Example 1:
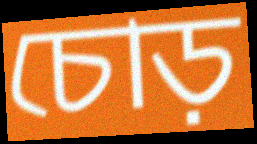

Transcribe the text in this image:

চোড়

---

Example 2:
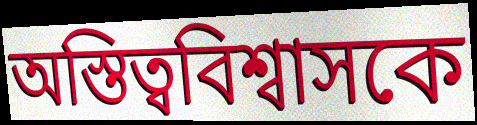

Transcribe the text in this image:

অস্তিত্ববিশ্বাসকে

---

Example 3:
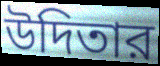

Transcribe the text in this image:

উদিতার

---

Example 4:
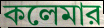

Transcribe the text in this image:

কলেমার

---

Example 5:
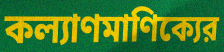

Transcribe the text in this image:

কল্যাণমাণিক্যের